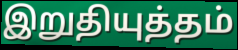
இறுதியுத்தம்